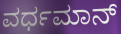
ವರ್ಧಮಾನ್